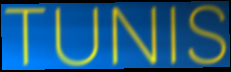
TUNIS